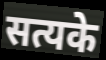
सत्यके